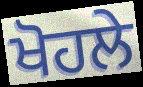
ਖੋਹਲੇ